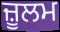
ਜ਼ੂਲਮ